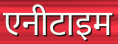
एनीटाइम